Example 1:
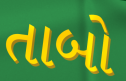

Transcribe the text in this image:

તાબો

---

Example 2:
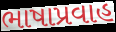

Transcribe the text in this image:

ભાષાપ્રવાહ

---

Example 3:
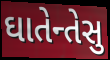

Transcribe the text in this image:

ઘાતેન્તેસુ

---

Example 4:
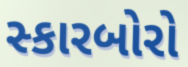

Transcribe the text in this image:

સ્કારબોરો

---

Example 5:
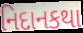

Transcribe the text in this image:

નિદાનકથા